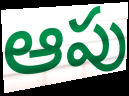
ఆపు